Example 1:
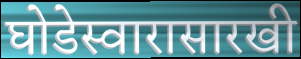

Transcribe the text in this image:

घोडेस्वारासारखी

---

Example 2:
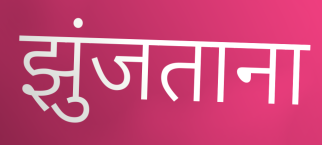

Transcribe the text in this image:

झुंजताना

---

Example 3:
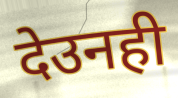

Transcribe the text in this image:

देउनही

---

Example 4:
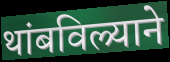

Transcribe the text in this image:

थांबविल्याने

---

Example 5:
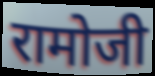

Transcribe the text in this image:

रामोजी